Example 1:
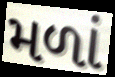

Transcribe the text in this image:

મળાં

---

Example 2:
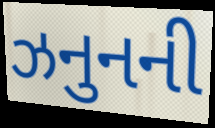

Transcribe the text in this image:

ઝનુનની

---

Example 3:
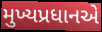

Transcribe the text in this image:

મુખ્યપ્રધાનએ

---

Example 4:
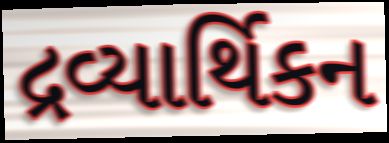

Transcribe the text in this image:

દ્રવ્યાર્થિકન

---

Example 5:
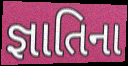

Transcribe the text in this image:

જ્ઞાતિના